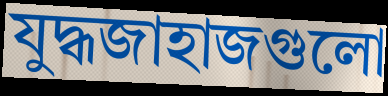
যুদ্ধজাহাজগুলো